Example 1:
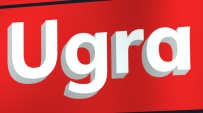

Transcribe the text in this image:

Ugra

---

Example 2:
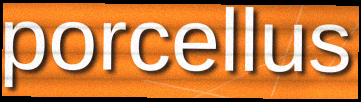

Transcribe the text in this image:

porcellus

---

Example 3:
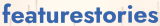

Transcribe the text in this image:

featurestories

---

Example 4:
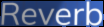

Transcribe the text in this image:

Reverb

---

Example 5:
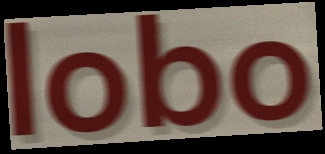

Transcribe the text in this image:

lobo